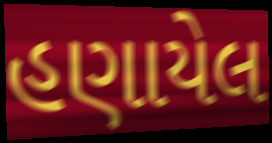
હણાયેલ